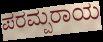
ಪರಮ್ಪರಾಯ